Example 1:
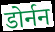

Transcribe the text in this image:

डोर्नन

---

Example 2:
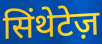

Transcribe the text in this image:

सिंथेटेज़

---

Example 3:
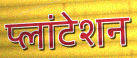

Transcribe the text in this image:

प्लांटेशन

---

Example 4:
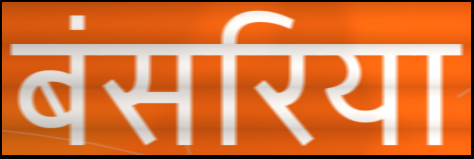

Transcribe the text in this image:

बंसरिया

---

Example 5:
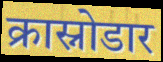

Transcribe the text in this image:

क्रास्नोडार